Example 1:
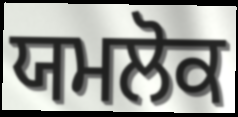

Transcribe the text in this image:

ਯਮਲੋਕ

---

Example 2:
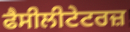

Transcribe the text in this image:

ਫੈਸੀਲੀਟੇਟਰਜ਼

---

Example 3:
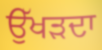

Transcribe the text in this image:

ਉੱਖੜਦਾ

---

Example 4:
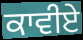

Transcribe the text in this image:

ਕਾਵੀਏ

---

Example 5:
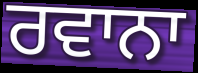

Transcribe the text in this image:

ਰਵਾਨਾ